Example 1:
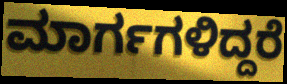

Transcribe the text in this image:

ಮಾರ್ಗಗಳಿದ್ದರೆ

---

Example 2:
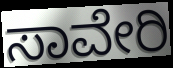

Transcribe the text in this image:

ಸಾವೇರಿ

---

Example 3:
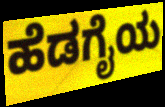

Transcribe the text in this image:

ಹೆಡಗೈಯ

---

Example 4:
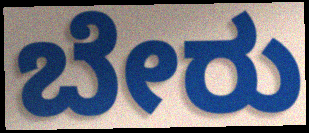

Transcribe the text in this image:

ಬೇರು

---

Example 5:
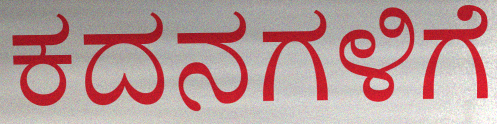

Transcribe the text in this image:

ಕದನಗಳಿಗೆ